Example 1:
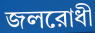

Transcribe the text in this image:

জলরোধী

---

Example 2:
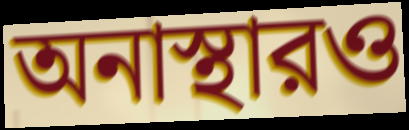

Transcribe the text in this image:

অনাস্থারও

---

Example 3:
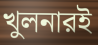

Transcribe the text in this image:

খুলনারই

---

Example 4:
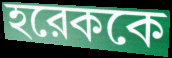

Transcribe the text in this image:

হরেককে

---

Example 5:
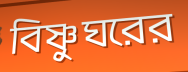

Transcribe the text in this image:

বিষ্ণুঘরের